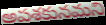
అపశకునమని